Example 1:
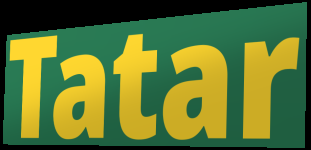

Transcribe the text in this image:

Tatar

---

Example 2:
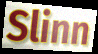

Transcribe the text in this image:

Slinn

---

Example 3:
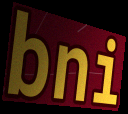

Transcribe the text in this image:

bni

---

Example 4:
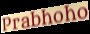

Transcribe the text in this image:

Prabhoho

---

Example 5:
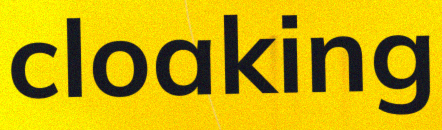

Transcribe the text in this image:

cloaking